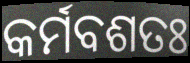
କର୍ମବଶତଃ